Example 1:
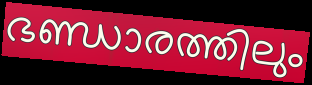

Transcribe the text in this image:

ഭണ്ഡാരത്തിലും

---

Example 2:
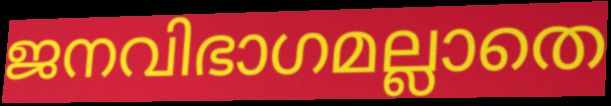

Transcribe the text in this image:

ജനവിഭാഗമല്ലാതെ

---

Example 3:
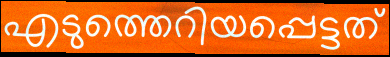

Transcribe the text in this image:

എടുത്തെറിയപ്പെട്ടത്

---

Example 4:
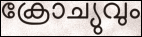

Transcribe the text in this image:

ക്രോച്യുവും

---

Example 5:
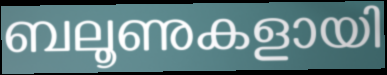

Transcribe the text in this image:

ബലൂണുകളായി